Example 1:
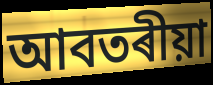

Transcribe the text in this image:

আবতৰীয়া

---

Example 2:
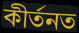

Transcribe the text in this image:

কীৰ্তনত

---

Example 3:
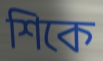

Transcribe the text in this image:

শিকে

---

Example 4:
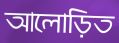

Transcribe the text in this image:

আলোড়িত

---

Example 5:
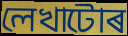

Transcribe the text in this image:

লেখাটোৰ